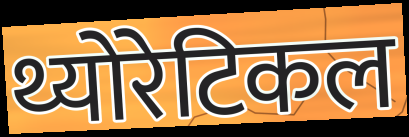
थ्योरेटिकल